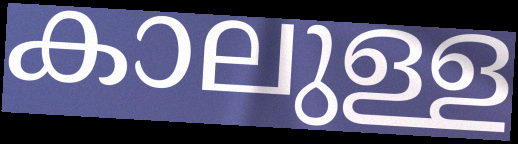
കാലുള്ള